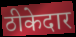
ठीकेदार